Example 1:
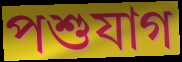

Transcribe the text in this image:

পশুযাগ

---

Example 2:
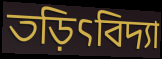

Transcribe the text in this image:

তড়িৎবিদ্যা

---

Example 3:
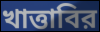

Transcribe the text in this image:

খাত্তাবির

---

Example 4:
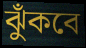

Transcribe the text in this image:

ঝুঁকবে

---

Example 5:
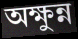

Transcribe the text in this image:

অক্ষুন্ন